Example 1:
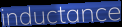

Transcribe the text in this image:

inductance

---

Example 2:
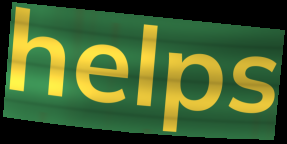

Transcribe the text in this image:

helps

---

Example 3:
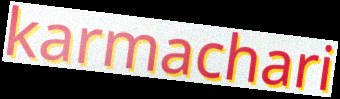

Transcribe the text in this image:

karmachari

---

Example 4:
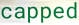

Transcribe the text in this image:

capped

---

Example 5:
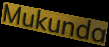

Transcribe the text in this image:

Mukunda